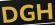
DGH